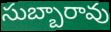
సుబ్బారావు